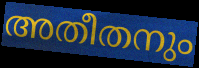
അതീതനും